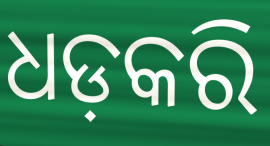
ଧଡ଼କରି